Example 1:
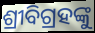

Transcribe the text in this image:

ଶ୍ରୀବିଗ୍ରହଙ୍କୁ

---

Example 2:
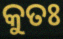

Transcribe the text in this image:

କୁତଃ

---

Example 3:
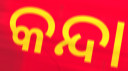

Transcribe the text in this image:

କନ୍ଦା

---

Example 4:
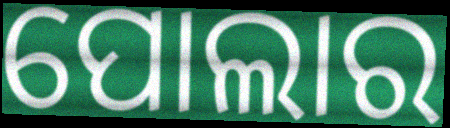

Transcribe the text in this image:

ପୋଲାର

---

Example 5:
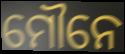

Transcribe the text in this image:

ମୌନେ